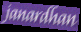
janardhan